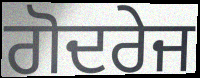
ਗੋਦਰੇਜ